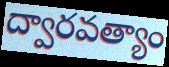
ద్వారవత్యాం